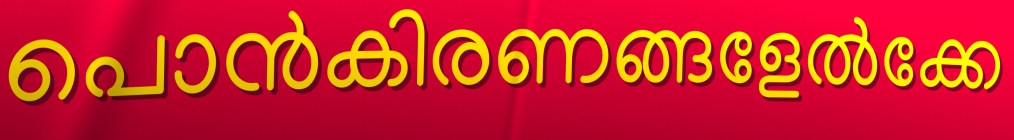
പൊൻകിരണങ്ങളേൽക്കേ